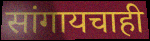
सांगायचाही